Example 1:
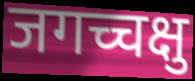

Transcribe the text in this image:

जगच्चक्षु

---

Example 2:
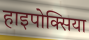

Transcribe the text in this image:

हाइपोक्सिया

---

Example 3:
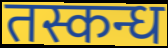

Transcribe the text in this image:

तस्कन्ध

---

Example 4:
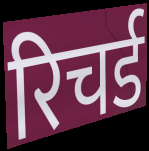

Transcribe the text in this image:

रिचर्ड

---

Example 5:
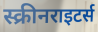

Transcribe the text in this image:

स्क्रीनराइटर्स